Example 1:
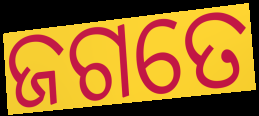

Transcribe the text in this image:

ଜଗତେ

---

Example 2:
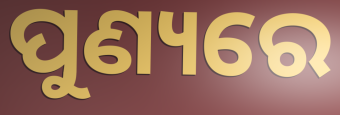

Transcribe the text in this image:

ପୁଣ୍ୟରେ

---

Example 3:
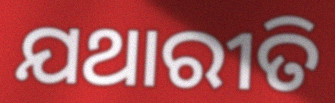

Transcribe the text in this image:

ଯଥାରୀତି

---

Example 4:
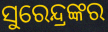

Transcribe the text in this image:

ସୁରେନ୍ଦ୍ରଙ୍କର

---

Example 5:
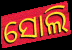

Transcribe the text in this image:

ସୋଲି